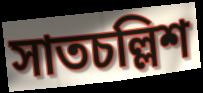
সাতচল্লিশ